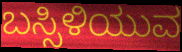
ಬಸ್ಸಿಳಿಯುವ